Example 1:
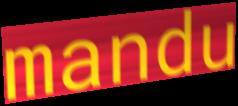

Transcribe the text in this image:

mandu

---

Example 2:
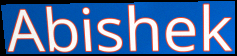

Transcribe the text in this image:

Abishek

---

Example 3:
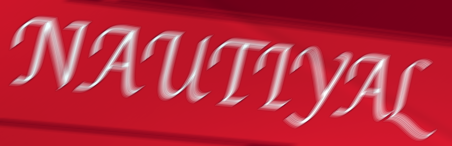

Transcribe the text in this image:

NAUTIYAL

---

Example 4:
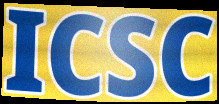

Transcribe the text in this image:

ICSC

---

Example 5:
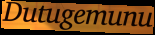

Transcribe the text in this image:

Dutugemunu